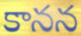
కానన